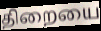
திறையை